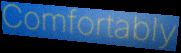
Comfortably